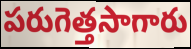
పరుగెత్తసాగారు